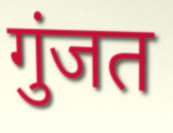
गुंजत